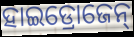
ହାଇଡ୍ରୋଜେନ୍